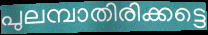
പുലമ്പാതിരിക്കട്ടെ